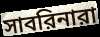
সাবরিনারা